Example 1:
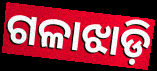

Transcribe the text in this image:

ଗଳାଝାଡ଼ି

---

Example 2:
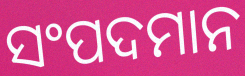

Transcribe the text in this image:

ସଂପଦମାନ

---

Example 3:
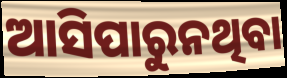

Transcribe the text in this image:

ଆସିପାରୁନଥିବା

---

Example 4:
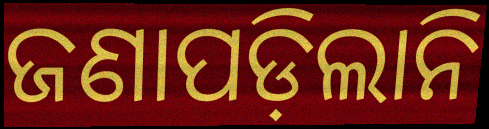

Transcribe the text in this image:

ଜଣାପଡ଼ିଲାନି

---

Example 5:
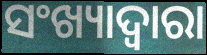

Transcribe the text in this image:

ସଂଖ୍ୟାଦ୍ଵାରା